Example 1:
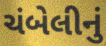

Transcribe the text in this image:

ચંબેલીનું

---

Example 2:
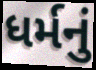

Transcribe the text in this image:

ધર્મનું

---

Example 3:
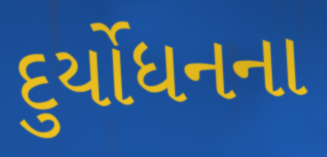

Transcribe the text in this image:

દુર્યોધનના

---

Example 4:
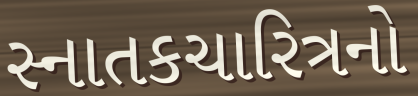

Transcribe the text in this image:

સ્નાતકચારિત્રનો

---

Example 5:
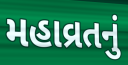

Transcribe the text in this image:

મહાવ્રતનું